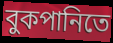
বুকপানিতে